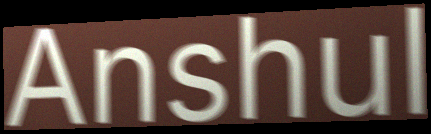
Anshul